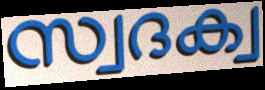
സ്വദക്വ